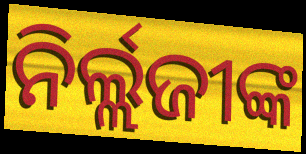
ନିର୍ଲ୍ଲଜୀଙ୍କ